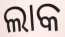
ଲାକ